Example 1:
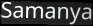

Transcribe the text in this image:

Samanya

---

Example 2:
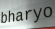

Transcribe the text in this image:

bharyo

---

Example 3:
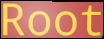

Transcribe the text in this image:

Root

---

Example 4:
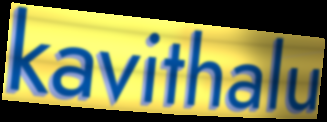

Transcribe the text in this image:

kavithalu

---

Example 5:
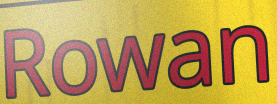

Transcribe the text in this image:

Rowan